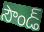
సౌండ్